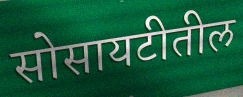
सोसायटीतील